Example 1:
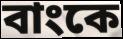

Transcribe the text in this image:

বাংকে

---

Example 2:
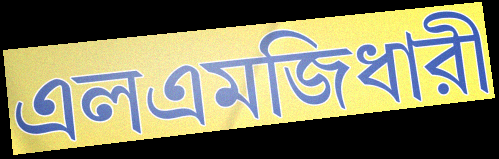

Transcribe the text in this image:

এলএমজিধারী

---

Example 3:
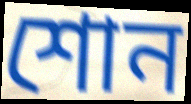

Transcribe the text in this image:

শোন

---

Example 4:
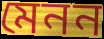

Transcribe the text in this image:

মেনন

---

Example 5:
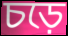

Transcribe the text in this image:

চড়ে